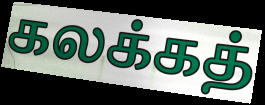
கலக்கத்